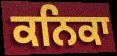
ਕਨਿਕਾ